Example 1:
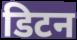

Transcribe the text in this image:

डिटन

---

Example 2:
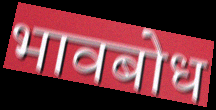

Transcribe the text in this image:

भावबोध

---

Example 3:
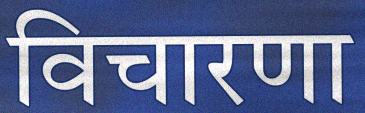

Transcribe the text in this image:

विचारणा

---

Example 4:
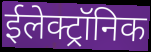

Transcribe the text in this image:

ईलेक्ट्रॉनिक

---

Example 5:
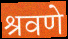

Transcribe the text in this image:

श्रवणे